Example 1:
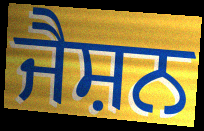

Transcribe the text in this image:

ਜੈਸ਼ਨ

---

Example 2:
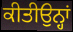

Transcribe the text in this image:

ਕੀਤੀਉਨ੍ਹਾਂ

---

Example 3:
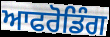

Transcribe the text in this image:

ਆਫਰੋਡਿੰਗ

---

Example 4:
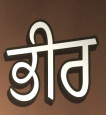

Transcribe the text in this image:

ਭੀਰ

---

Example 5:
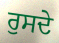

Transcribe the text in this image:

ਰੁਸਦੇ